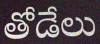
తోడేలు